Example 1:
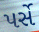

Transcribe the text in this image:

પર્સે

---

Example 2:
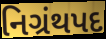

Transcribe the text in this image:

નિગ્રંથપદ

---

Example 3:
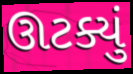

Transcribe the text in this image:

ઊટક્યું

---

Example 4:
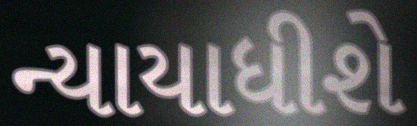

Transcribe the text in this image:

ન્યાયાધીશે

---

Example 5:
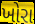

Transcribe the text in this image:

ખોરા